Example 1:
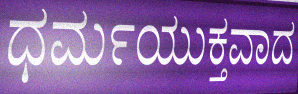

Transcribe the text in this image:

ಧರ್ಮಯುಕ್ತವಾದ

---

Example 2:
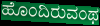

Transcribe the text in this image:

ಹೊಂದಿರುವಂಥ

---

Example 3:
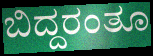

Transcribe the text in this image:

ಬಿದ್ದರಂತೂ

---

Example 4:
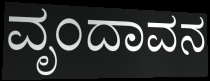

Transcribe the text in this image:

ವೃಂದಾವನ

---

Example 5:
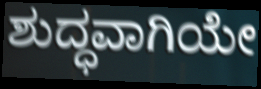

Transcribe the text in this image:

ಶುದ್ಧವಾಗಿಯೇ